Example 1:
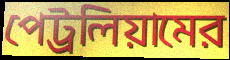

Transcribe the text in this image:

পেট্রলিয়ামের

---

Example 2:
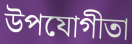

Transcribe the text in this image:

উপযোগীতা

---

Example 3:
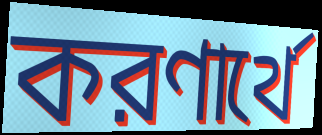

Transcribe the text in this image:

করণার্থে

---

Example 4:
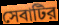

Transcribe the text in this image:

সেবাটির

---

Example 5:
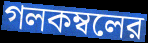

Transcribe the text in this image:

গলকম্বলের